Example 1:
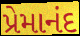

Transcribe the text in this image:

પ્રેમાનંદ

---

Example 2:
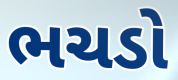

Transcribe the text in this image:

ભચડો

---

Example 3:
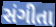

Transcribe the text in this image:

સંગીતા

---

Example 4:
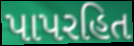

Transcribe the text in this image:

પાપરહિત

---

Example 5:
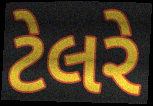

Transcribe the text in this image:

ટેલરે